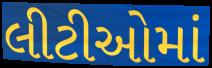
લીટીઓમાં